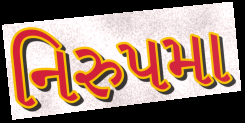
નિરુપમા